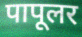
पापूलर